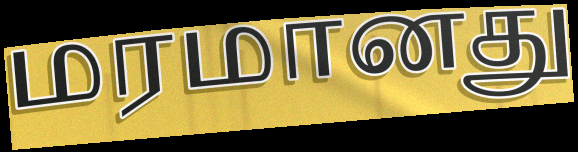
மரமானது